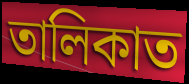
তালিকাত